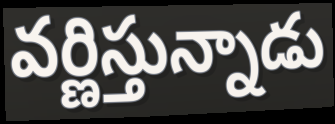
వర్ణిస్తున్నాడు